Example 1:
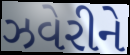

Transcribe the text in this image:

ઝવેરીને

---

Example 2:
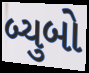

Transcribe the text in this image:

બ્યુબો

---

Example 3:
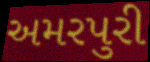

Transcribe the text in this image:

અમરપુરી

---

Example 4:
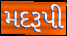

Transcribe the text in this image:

મદરૂપી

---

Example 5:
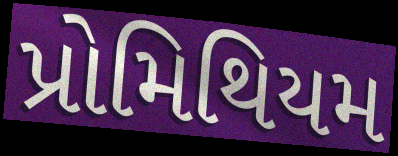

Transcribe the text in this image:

પ્રોમિથિયમ